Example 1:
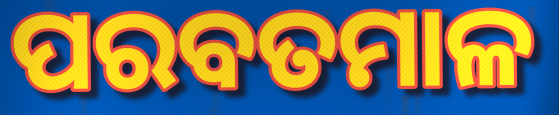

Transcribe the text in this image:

ପରବତମାଳ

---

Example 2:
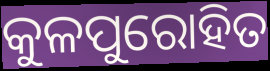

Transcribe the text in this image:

କୁଳପୁରୋହିତ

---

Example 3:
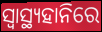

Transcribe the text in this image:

ସ୍ୱାସ୍ଥ୍ୟହାନିରେ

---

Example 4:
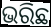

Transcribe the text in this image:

ଭରିଛ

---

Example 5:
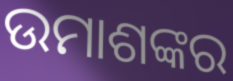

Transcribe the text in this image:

ଉମାଶଙ୍କର